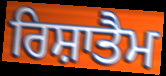
ਰਿਸ਼ਾਤੈਮ